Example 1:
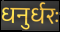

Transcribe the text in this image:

धनुर्धरः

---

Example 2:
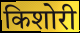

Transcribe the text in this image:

किशोरी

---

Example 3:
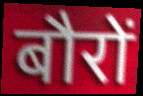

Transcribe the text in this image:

बौरों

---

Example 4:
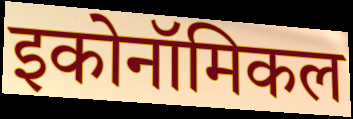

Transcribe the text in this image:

इकोनॉमिकल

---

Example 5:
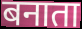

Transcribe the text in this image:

बनाता